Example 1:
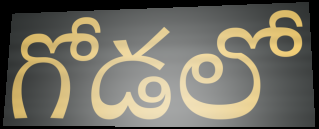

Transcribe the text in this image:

గోడలో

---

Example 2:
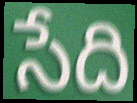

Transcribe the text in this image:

సేది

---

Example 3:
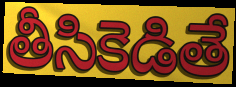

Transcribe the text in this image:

తీసికెడితే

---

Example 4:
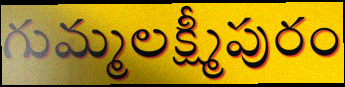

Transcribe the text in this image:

గుమ్మలక్ష్మీపురం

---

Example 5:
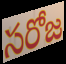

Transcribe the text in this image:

సరోజ